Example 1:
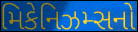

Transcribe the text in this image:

મિકેનિઝમ્સનો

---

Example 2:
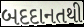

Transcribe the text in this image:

બદદાનતથી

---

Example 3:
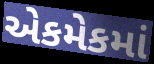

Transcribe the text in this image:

એકમેકમાં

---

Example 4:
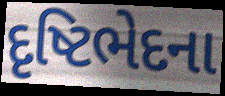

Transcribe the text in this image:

દૃષ્ટિભેદના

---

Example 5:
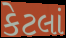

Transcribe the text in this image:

કેટલાં